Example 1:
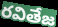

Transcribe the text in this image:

రవితేజ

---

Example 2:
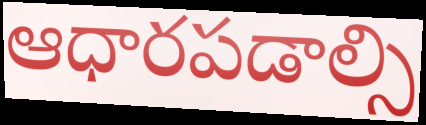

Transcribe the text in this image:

ఆధారపడాల్సి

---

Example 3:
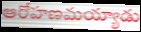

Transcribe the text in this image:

ఆరోహణమయ్యాడు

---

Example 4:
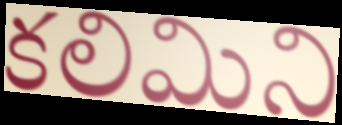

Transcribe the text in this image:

కలిమిని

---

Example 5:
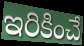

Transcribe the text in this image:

ఇరికించే